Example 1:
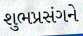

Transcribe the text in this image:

શુભપ્રસંગને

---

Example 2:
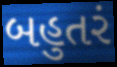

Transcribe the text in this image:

બહુતરં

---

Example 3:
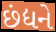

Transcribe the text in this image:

છંદ્યને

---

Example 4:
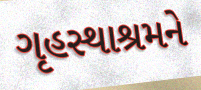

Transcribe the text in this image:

ગૃહસ્થાશ્રમને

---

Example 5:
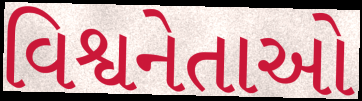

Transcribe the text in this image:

વિશ્વનેતાઓ